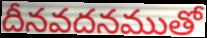
దీనవదనముతో